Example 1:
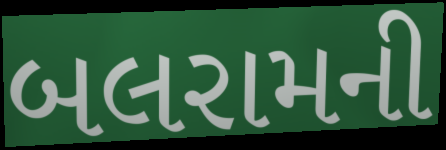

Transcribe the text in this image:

બલરામની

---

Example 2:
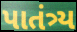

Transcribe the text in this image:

પાતંત્ર્ય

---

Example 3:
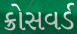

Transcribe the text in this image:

ક્રોસવર્ડ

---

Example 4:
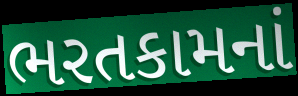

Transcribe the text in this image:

ભરતકામનાં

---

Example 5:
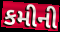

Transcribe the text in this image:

કમીની